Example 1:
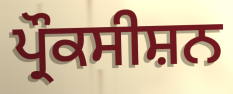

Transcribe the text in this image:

ਪ੍ਰੌਕਸੀਸ਼ਨ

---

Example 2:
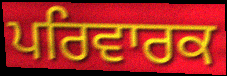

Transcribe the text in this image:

ਪਰਿਵਾਰਕ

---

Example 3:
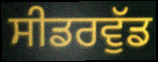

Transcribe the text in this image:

ਸੀਡਰਵੁੱਡ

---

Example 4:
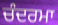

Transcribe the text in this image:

ਚੰਦਰਮਾ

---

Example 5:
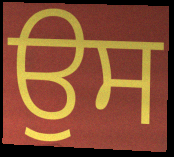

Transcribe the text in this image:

ਉਸ